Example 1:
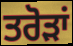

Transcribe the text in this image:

ਤਰੋੜਾਂ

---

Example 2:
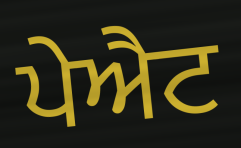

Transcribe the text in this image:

ਪੇਐਟ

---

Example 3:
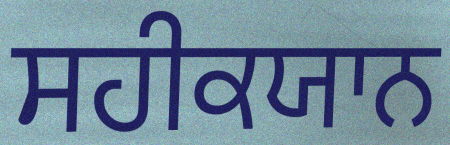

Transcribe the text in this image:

ਸਹੀਕਯਾਨ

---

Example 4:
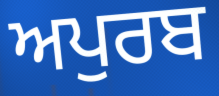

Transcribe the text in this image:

ਅਪੁਰਬ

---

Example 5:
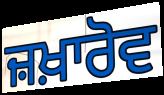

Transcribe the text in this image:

ਜ਼ਖ਼ਾਰੋਵ